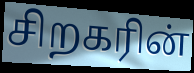
சிறகரின்